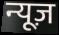
न्यूज़